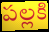
పల్లకి